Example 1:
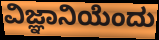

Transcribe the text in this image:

ವಿಜ್ಞಾನಿಯೆಂದು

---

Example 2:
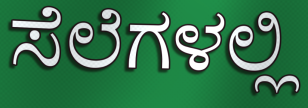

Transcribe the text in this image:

ಸೆಲೆಗಳಲ್ಲಿ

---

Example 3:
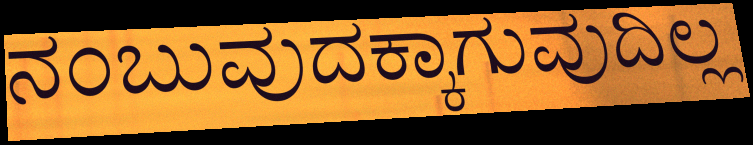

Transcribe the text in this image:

ನಂಬುವುದಕ್ಕಾಗುವುದಿಲ್ಲ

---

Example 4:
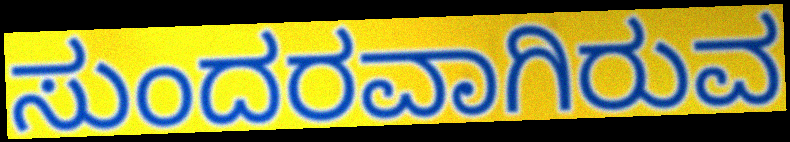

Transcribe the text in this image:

ಸುಂದರವಾಗಿರುವ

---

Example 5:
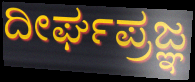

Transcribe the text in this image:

ದೀರ್ಘಪ್ರಜ್ಞ